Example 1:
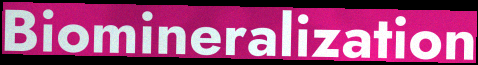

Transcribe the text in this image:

Biomineralization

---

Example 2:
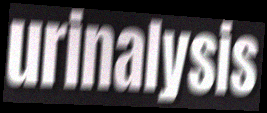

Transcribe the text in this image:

urinalysis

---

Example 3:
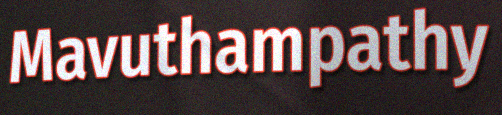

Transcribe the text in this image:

Mavuthampathy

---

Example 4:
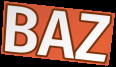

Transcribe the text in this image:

BAZ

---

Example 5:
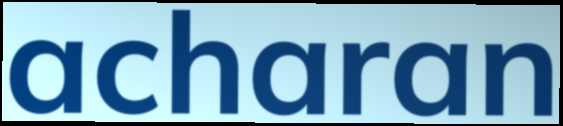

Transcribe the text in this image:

acharan